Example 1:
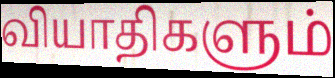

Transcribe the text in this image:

வியாதிகளும்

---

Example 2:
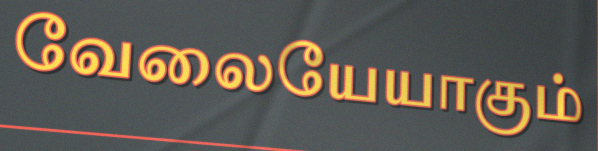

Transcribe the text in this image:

வேலையேயாகும்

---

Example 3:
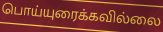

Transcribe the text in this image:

பொய்யுரைக்கவில்லை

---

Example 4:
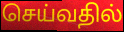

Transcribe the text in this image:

செய்வதில்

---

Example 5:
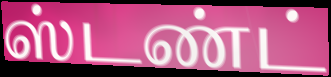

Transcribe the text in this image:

ஸ்டண்ட்